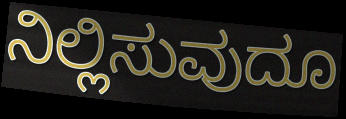
ನಿಲ್ಲಿಸುವುದೂ